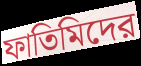
ফাতিমিদের